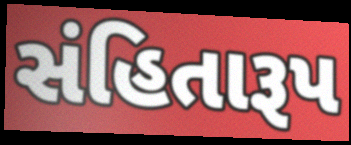
સંહિતારૂપ